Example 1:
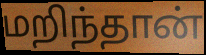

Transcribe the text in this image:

மறிந்தான்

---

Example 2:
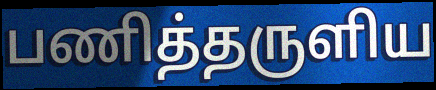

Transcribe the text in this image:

பணித்தருளிய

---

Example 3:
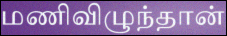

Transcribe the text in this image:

மணிவிழுந்தான்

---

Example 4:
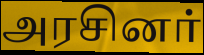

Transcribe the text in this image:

அரசினர்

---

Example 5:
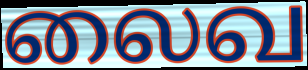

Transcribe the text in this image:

லைவ